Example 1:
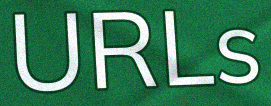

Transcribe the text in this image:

URLs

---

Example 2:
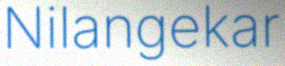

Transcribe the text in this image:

Nilangekar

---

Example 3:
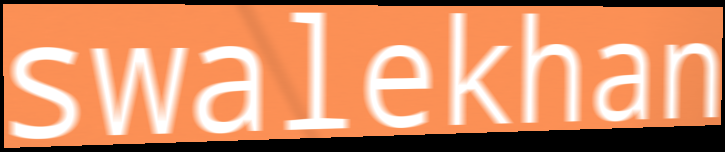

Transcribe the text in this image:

swalekhan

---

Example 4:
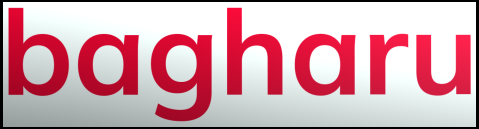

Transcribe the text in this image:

bagharu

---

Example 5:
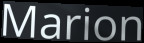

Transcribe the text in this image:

Marion